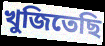
খুজিতেছি